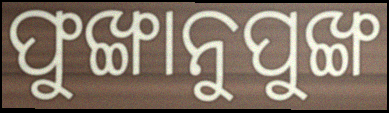
ଫୁଙ୍ଖାନୁପୁଙ୍ଖ